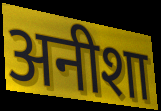
अनीशा